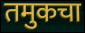
तमुकचा